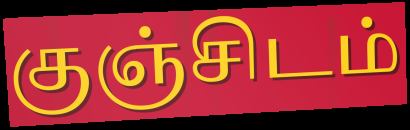
குஞ்சிடம்